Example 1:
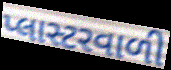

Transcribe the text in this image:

પ્લાસ્ટરવાળી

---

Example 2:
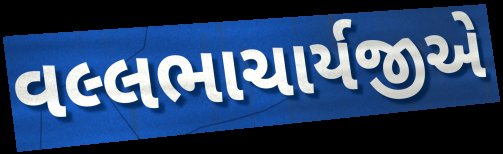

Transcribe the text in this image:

વલ્લભાચાર્યજીએ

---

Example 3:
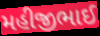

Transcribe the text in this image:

મહીજીભાઈ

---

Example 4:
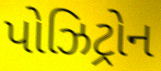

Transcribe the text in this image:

પોઝિટ્રોન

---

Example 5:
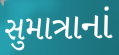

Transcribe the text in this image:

સુમાત્રાનાં